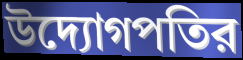
উদ্যোগপতির